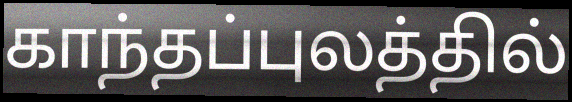
காந்தப்புலத்தில்